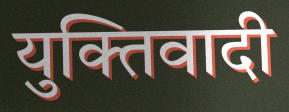
युक्तिवादी